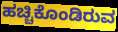
ಹಚ್ಚಿಕೊಂಡಿರುವ